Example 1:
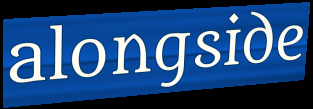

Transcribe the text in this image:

alongside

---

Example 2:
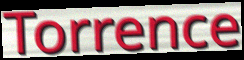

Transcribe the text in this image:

Torrence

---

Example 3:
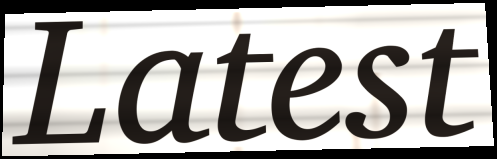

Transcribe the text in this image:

Latest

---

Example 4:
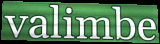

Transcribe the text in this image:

valimbe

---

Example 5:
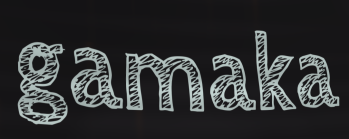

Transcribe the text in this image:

gamaka